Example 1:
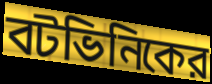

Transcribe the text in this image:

বটভিনিকের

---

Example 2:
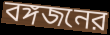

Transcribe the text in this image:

বঙ্গজনের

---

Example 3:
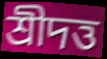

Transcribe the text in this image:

শ্রীদত্ত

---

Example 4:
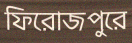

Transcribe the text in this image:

ফিরোজপুরে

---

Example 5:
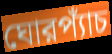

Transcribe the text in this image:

ঘোরপ্যাঁচ